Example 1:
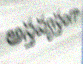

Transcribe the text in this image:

అస్తవ్యస్తంగా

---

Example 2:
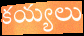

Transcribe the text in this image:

కయ్యలు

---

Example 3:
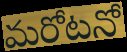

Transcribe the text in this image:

మరోటనో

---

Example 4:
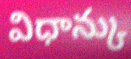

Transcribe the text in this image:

విధాన్కు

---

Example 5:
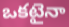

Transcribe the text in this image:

ఒకటైనా